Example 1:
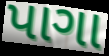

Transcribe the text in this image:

પાગા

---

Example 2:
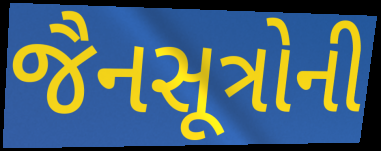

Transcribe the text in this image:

જૈનસૂત્રોની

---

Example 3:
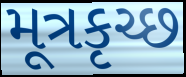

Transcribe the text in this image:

મૂત્રકૃચ્છ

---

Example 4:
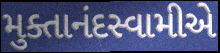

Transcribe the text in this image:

મુક્તાનંદસ્વામીએ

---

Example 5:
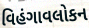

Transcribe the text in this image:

વિહંગાવલોકન